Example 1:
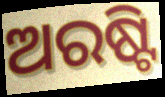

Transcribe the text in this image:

ଅରଷ୍ଟି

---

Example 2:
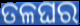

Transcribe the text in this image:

ତଳଘର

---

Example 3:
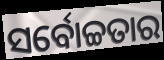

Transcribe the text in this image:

ସର୍ବୋଚ୍ଚତାର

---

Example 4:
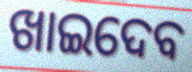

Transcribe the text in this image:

ଖାଇଦେବ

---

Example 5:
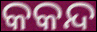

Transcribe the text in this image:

କକନ୍ଦ